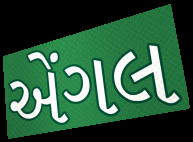
એંગલ